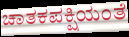
ಚಾತಕಪಕ್ಷಿಯಂತೆ